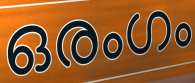
ഒരംഗം